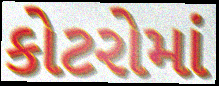
કોટરોમાં